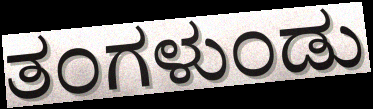
ತಂಗಳುಂಡು